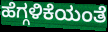
ಹೆಗ್ಗಳಿಕೆಯಂತೆ